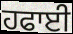
ਹਫਾਈ